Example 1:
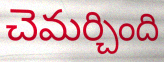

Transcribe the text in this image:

చెమర్చింది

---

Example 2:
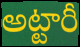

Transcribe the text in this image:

అట్టారీ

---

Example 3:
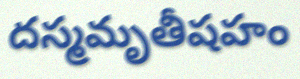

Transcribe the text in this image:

దస్మమృతీషహం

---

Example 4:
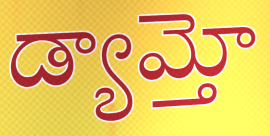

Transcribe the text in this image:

డ్యామ్తో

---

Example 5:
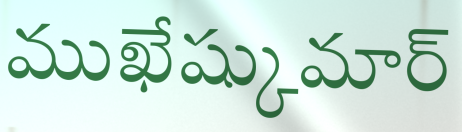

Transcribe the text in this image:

ముఖేష్కుమార్